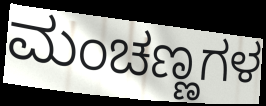
ಮಂಚಣ್ಣಗಳ